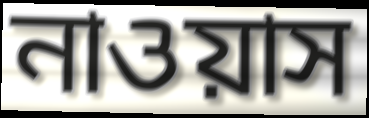
নাওয়াস